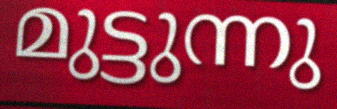
മുട്ടുന്നു